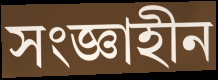
সংজ্ঞাহীন